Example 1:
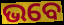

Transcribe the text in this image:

ଭବେ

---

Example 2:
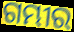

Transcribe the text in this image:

ଗମ୍ଭୀର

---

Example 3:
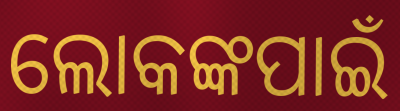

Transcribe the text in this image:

ଲୋକଙ୍କପାଇଁ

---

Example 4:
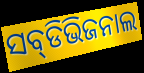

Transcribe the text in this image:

ସବ୍‌ଡିଭିଜନାଲ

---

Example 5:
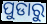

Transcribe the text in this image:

ପୁଡାରୁ